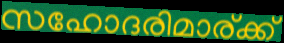
സഹോദരിമാര്ക്ക്